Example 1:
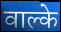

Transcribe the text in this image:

वाल्के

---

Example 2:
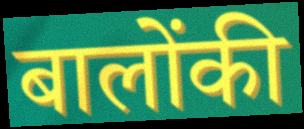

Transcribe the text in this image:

बालोंकी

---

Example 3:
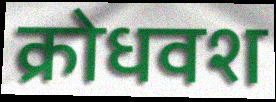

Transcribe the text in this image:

क्रोधवश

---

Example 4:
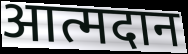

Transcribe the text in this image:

आत्मदान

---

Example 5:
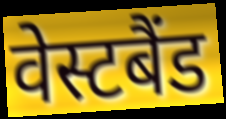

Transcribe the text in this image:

वेस्टबैंड